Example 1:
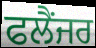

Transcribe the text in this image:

ਫਲੈਂਜਰ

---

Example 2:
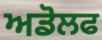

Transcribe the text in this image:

ਅਡੋਲਫ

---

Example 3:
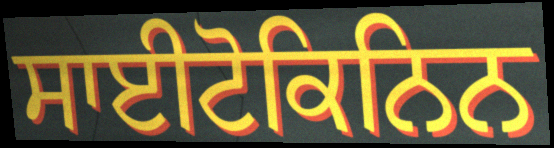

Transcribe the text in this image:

ਸਾਈਟੋਕਿਨਿਨ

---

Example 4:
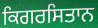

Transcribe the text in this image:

ਕਿਗਰਸਿਤਾਨ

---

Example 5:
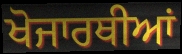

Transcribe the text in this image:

ਖੋਜਾਰਥੀਆਂ